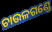
ଚାଉଳଗଣ୍ଡେ